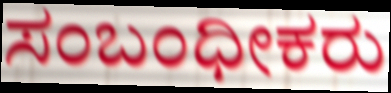
ಸಂಬಂಧೀಕರು